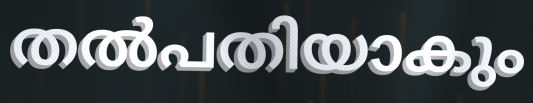
തൽപതിയാകും